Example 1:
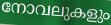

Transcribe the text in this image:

നോവലുകളും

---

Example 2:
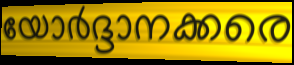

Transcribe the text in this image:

യോർദ്ദാനക്കരെ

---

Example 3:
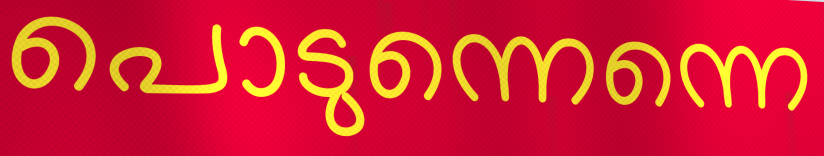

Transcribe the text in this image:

പൊടുന്നെന്നെ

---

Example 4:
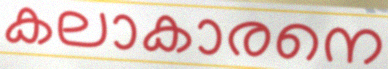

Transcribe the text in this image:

കലാകാരനെ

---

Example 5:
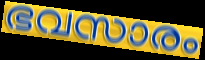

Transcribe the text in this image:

ഭവസാരം